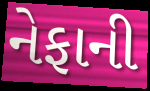
નેફાની